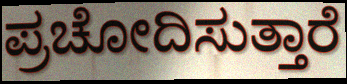
ಪ್ರಚೋದಿಸುತ್ತಾರೆ